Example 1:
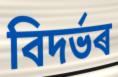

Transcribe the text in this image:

বিদৰ্ভৰ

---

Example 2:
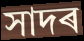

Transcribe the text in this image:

সাদৰ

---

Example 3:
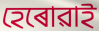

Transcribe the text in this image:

হেৰোৱাই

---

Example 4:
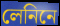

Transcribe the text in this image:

লেনিনে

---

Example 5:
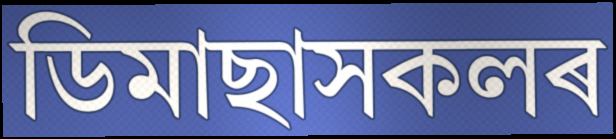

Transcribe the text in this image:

ডিমাছাসকলৰ